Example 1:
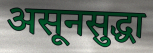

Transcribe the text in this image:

असूनसुद्धा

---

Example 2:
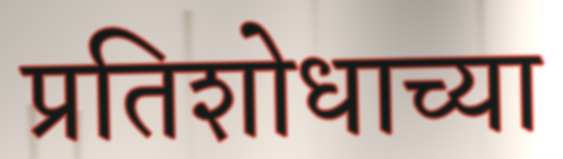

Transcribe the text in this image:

प्रतिशोधाच्या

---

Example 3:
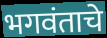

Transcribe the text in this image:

भगवंताचे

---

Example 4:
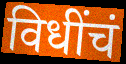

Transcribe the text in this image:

विधींचं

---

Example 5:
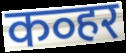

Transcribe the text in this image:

कव्हर